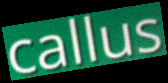
callus